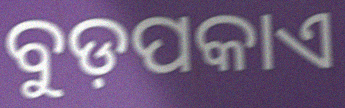
ବୁଡ଼ପକାଏ